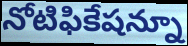
నోటిఫికేషన్నూ